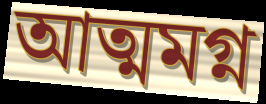
আত্মমগ্ন